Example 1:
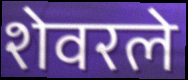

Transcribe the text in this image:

शेवरले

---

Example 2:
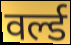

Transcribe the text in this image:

वर्ल्‍ड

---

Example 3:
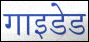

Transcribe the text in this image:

गाइडेड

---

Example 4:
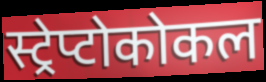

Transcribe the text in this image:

स्ट्रेप्टोकोकल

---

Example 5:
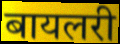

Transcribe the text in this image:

बायलरी